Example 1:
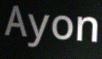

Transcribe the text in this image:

Ayon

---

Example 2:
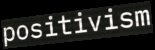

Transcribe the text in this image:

positivism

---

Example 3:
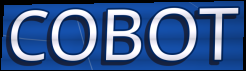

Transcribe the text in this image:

COBOT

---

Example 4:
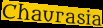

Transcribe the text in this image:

Chaurasia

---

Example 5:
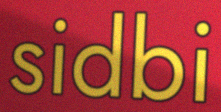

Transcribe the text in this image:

sidbi